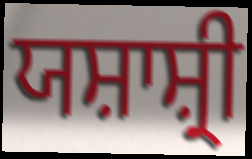
ਯਸ਼ਾਸ਼੍ਰੀ